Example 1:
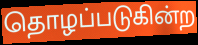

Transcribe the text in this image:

தொழப்படுகின்ற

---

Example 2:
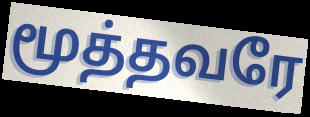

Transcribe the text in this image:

மூத்தவரே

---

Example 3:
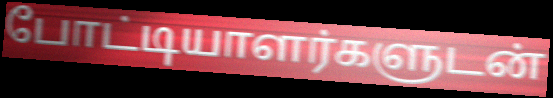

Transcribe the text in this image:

போட்டியாளர்களுடன்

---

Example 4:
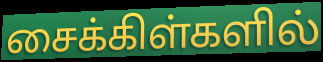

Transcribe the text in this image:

சைக்கிள்களில்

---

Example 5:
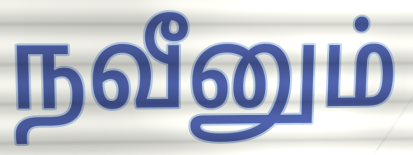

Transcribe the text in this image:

நவீனும்